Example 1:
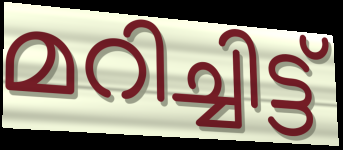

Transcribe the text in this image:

മറിച്ചിട്ട്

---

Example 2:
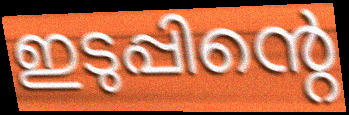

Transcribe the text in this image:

ഇടുപ്പിന്റെ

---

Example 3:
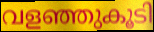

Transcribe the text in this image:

വളഞ്ഞുകൂടി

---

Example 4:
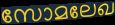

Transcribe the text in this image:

സോമലേഖ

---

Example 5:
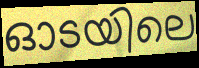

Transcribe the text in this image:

ഓടയിലെ